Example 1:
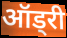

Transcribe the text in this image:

ऑड्री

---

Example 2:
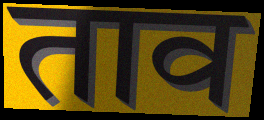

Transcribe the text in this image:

ताव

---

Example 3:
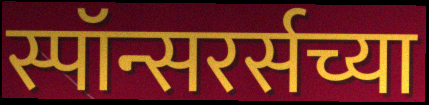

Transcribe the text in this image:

स्पॉन्सरर्सच्या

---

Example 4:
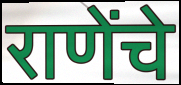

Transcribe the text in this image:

राणेंचे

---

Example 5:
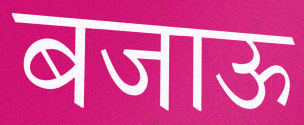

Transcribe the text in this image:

बजाऊ